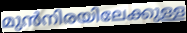
മുൻനിരയിലേക്കുള്ള